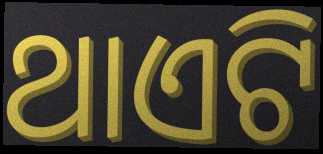
ଥାଏଟି